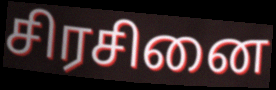
சிரசினை